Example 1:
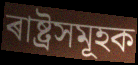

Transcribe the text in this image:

ৰাষ্ট্ৰসমূহক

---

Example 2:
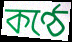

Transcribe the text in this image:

কণ্ঠে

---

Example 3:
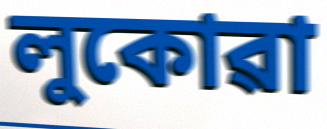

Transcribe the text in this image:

লুকোৱা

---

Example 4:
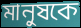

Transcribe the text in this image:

মানুষকে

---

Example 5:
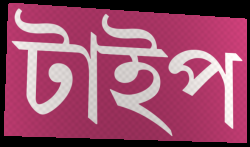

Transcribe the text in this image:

টাইপ